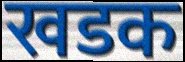
खडक